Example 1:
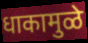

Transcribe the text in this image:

धाकामुळे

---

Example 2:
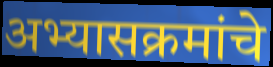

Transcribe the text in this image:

अभ्यासक्रमांचे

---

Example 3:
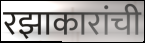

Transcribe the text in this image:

रझाकारांची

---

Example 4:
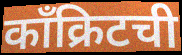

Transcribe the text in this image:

काँक्रिटची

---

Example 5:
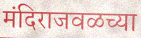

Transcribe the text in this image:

मंदिराजवळच्या